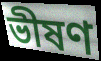
ভীষণ